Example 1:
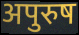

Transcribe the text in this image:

अपुरुष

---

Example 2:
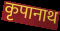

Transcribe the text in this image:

कृपानाथ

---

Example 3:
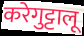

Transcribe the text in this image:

करेगुट्टालू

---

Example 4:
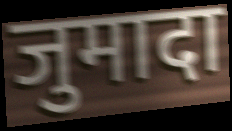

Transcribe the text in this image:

जुमादा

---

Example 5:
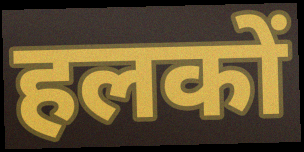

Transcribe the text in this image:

हलकों